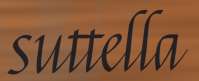
suttella